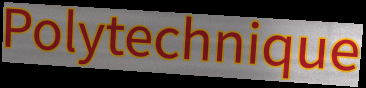
Polytechnique